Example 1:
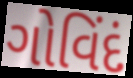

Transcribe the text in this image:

ગોવિંદં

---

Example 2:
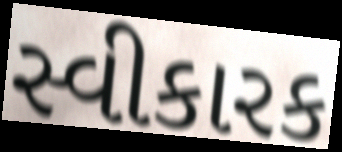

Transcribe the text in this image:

સ્વીકારક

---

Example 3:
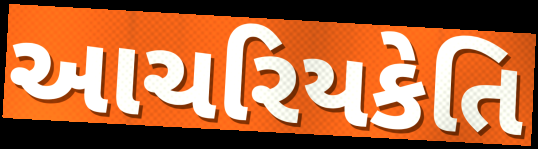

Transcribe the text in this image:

આચરિયકેતિ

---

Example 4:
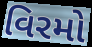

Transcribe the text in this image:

વિરમો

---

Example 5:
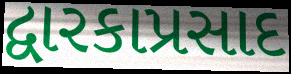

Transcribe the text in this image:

દ્વારકાપ્રસાદ